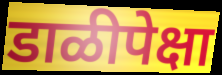
डाळीपेक्षा